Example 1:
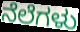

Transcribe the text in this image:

ನೆಲೆಗಳು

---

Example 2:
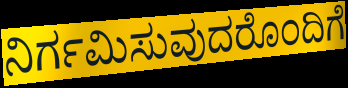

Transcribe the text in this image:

ನಿರ್ಗಮಿಸುವುದರೊಂದಿಗೆ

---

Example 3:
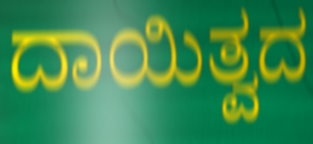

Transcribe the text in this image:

ದಾಯಿತ್ವದ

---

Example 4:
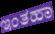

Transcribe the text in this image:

ಇಂತಹಾ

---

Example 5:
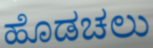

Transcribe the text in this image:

ಹೊಡಚಲು